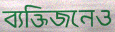
ব্যক্তিজনেও